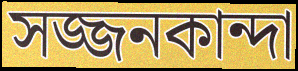
সজ্জনকান্দা